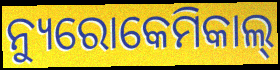
ନ୍ୟୁରୋକେମିକାଲ୍